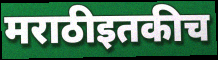
मराठीइतकीच